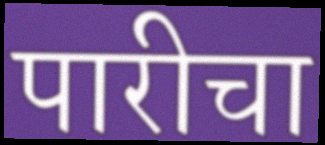
पारीचा